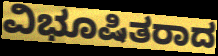
ವಿಭೂಷಿತರಾದ